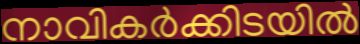
നാവികർക്കിടയിൽ